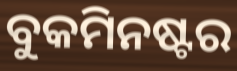
ବୁକମିନଷ୍ଟର